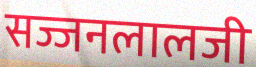
सज्जनलालजी